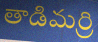
తాడిమర్రి